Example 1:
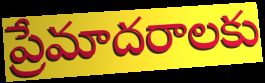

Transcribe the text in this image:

ప్రేమాదరాలకు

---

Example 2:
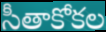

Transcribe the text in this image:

సీతాకోకల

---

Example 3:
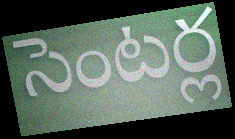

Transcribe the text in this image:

సెంటర్ల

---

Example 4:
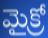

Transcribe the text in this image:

మైక్రో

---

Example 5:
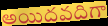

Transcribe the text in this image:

అయిదవదిగా